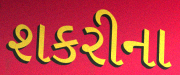
શકરીના